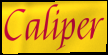
Caliper